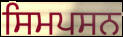
ਸਿਮਪਸਨ